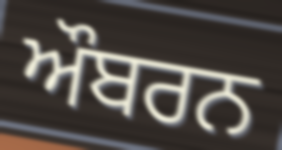
ਔਬਰਨ